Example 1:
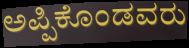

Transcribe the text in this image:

ಅಪ್ಪಿಕೊಂಡವರು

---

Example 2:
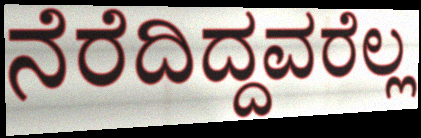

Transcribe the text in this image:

ನೆರೆದಿದ್ದವರೆಲ್ಲ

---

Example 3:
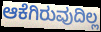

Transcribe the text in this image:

ಆಕೆಗಿರುವುದಿಲ್ಲ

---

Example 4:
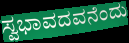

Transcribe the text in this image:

ಸ್ವಭಾವದವನೆಂದು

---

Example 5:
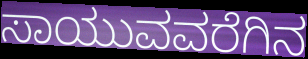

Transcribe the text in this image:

ಸಾಯುವವರೆಗಿನ